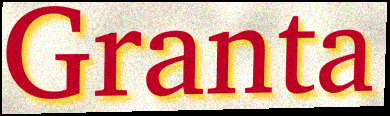
Granta